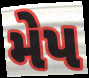
મેપ